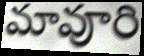
మావూరి